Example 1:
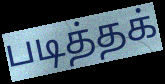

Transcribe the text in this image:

படித்தக்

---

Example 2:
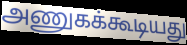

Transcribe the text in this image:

அணுகக்கூடியது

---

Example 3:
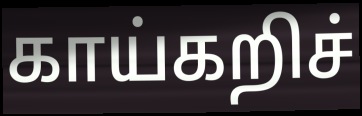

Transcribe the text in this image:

காய்கறிச்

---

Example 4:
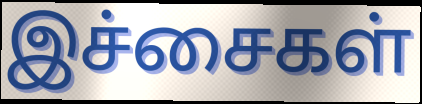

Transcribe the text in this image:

இச்சைகள்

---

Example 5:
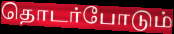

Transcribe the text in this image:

தொடர்போடும்